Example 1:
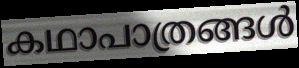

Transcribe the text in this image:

കഥാപാത്രങ്ങൾ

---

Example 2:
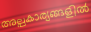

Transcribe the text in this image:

അല്പകാര്യങ്ങളിൽ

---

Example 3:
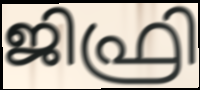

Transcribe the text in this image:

ജിഫ്രി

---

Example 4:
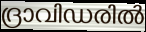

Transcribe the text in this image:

ദ്രാവിഡരിൽ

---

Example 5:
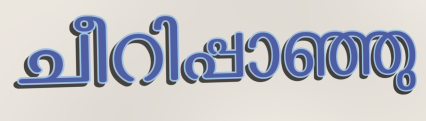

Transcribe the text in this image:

ചീറിപ്പാഞ്ഞു